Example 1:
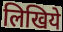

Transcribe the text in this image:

लिखिये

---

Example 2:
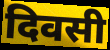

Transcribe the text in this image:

दिवसी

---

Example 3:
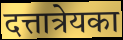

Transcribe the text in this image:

दत्तात्रेयका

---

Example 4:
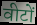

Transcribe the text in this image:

वीटों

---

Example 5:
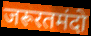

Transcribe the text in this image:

जरूरतमंदो